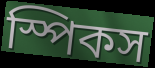
স্পিকস